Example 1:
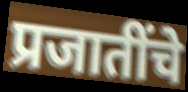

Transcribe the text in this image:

प्रजातींचे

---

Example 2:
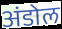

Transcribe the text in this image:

अंडोल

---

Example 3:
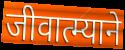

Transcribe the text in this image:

जीवात्म्याने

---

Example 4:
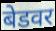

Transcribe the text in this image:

बेडवर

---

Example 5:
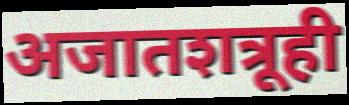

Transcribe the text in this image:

अजातशत्रूही